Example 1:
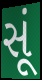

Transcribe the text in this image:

સૂં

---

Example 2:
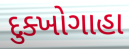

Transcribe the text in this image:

દુક્ખોગાહા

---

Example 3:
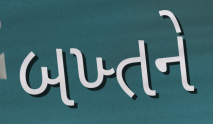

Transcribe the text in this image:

બખ્તને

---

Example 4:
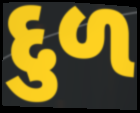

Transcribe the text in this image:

દુળ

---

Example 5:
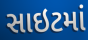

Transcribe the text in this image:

સાઇટમાં